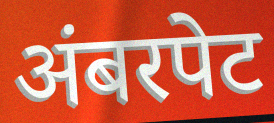
अंबरपेट